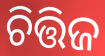
ଚିତ୍ତିଜ